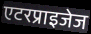
एटरप्राइजेज